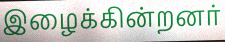
இழைக்கின்றனர்